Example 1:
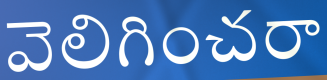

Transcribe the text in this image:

వెలిగించరా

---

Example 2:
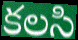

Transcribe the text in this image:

కలసి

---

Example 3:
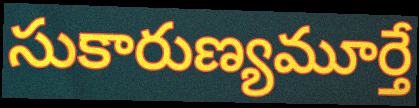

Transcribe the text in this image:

సుకారుణ్యమూర్తే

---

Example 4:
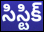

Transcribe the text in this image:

సిస్టిక్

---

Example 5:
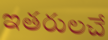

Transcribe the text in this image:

ఇతరులచే